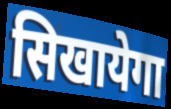
सिखायेगा